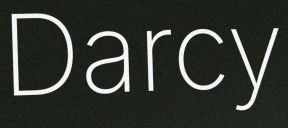
Darcy